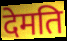
देमति